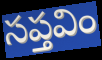
సప్తవిం